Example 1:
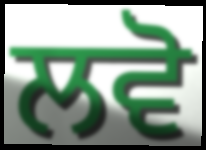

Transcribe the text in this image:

ਲਵੋ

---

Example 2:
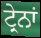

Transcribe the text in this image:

ਟ੍ਰੇਨਾਂ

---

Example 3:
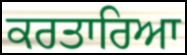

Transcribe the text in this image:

ਕਰਤਾਰਿਆ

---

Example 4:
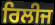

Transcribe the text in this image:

ਰਿਲੀਜ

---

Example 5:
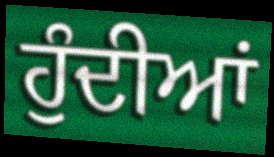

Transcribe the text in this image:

ਹੁੰਦੀਆਂ